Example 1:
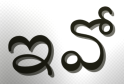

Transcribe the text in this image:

ఇవో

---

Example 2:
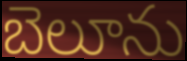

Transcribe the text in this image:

బెలూను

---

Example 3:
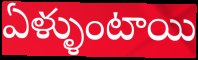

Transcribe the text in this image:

ఏళ్ళుంటాయి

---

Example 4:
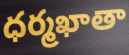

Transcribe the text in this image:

ధర్మఖాతా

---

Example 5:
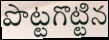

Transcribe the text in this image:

పొట్టగొట్టిన